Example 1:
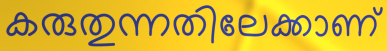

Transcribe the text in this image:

കരുതുന്നതിലേക്കാണ്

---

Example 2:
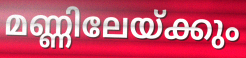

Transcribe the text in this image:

മണ്ണിലേയ്ക്കും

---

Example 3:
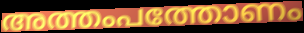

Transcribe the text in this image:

അത്തംപത്തോണം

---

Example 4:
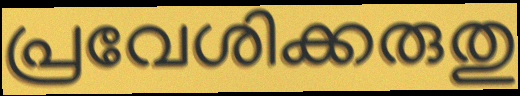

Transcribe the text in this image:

പ്രവേശിക്കരുതു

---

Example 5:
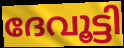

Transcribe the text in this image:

ദേവൂട്ടി